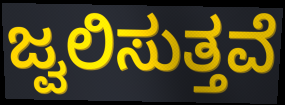
ಜ್ವಲಿಸುತ್ತವೆ